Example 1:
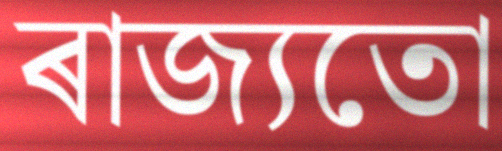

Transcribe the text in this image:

ৰাজ্যতো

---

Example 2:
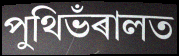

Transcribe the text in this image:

পুথিভঁৰালত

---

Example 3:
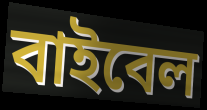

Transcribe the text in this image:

বাইবেল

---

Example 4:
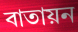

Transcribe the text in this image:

বাতায়ন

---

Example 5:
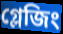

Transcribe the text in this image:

গ্লেজিং